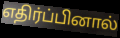
எதிர்ப்பினால்